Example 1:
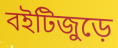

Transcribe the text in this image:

বইটিজুড়ে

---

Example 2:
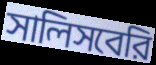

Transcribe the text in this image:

সালিসবেরি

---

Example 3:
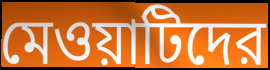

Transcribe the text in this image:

মেওয়াটিদের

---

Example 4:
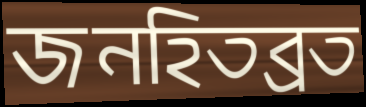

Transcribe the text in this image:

জনহিতব্রত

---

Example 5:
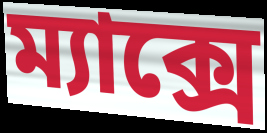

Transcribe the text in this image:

ম্যাক্সে